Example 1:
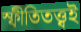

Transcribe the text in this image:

স্ফীতিতত্ত্বই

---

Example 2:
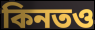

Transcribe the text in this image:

কিনতও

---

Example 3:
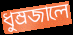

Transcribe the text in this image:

ধুম্রজালে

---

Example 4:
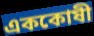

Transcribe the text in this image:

এককোষী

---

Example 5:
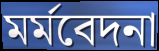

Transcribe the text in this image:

মর্মবেদনা